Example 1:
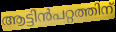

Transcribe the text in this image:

ആട്ടിൻപറ്റത്തിന്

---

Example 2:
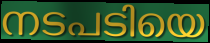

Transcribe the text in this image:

നടപടിയെ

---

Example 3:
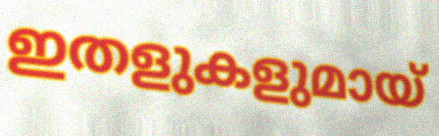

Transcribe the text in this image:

ഇതളുകളുമായ്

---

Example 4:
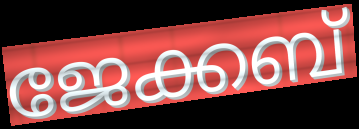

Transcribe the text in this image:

ജേക്കബ്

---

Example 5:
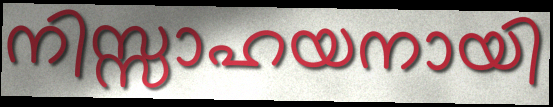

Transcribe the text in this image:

നിസ്സാഹയനായി